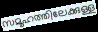
സമൂഹത്തിലേക്കുള്ള